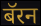
बॅरन